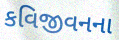
કવિજીવનના